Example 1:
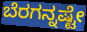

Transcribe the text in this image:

ಬೆರಗನ್ನಷ್ಟೇ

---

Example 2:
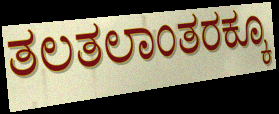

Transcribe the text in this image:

ತಲತಲಾಂತರಕ್ಕೂ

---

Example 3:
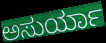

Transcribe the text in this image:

ಅಸುರ್ಯಾ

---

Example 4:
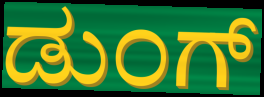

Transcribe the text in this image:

ಡುಂಗ್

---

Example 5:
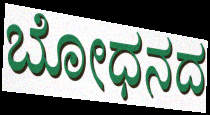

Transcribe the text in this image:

ಬೋಧನದ